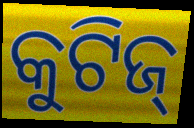
କୁଟିଜ୍